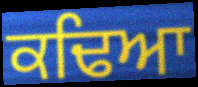
ਕਢਿਆ